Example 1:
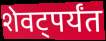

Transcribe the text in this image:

शेवट्पर्यंत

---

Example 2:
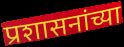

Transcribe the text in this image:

प्रशासनांच्या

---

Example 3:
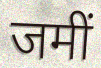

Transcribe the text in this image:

जमीं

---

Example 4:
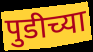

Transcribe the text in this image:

पुडीच्या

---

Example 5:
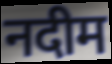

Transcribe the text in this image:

नदीम